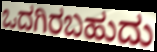
ಒದಗಿರಬಹುದು